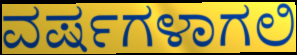
ವರ್ಷಗಳಾಗಲಿ